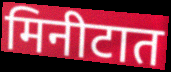
मिनीटात